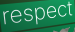
respect